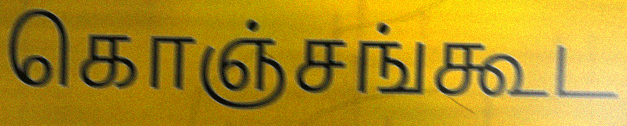
கொஞ்சங்கூட